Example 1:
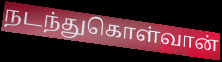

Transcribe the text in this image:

நடந்துகொள்வான்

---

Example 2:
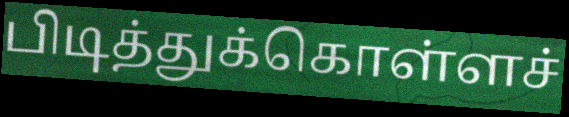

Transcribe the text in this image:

பிடித்துக்கொள்ளச்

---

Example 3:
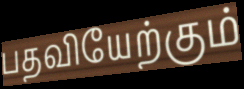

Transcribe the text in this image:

பதவியேற்கும்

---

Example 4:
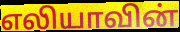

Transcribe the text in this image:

எலியாவின்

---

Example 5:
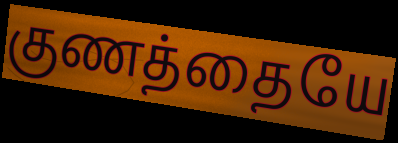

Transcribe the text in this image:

குணத்தையே